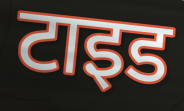
टाइड